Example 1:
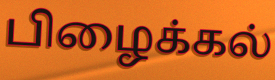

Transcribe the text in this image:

பிழைக்கல்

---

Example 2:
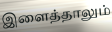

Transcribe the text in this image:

இளைத்தாலும்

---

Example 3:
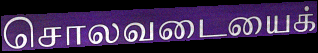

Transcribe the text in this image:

சொலவடையைக்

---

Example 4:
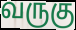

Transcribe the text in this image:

வருகு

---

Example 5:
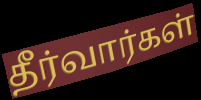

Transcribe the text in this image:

தீர்வார்கள்